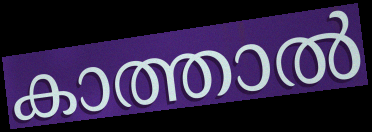
കാത്താൽ